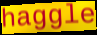
haggle